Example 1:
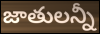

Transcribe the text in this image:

జాతులన్నీ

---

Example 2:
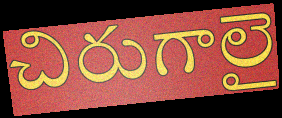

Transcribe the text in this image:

చిరుగాలై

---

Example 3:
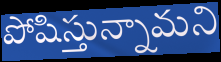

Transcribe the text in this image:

పోషిస్తున్నామని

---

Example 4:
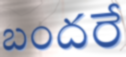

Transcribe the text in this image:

బందరే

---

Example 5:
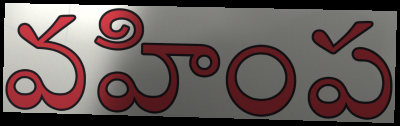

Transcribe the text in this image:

వహింప